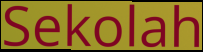
Sekolah